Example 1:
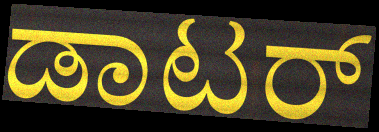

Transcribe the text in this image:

ಡಾಟರ್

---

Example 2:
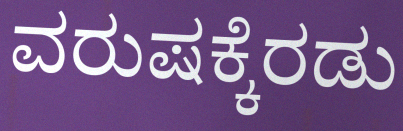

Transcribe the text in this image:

ವರುಷಕ್ಕೆರಡು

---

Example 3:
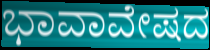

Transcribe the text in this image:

ಭಾವಾವೇಷದ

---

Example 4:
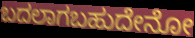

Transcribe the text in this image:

ಬದಲಾಗಬಹುದೇನೋ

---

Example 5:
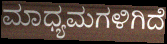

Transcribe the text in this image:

ಮಾಧ್ಯಮಗಳಿಗಿದೆ